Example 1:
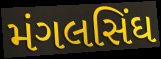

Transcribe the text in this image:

મંગલસિંઘ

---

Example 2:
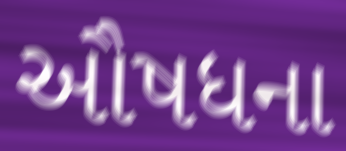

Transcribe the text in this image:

ઔષધના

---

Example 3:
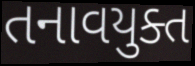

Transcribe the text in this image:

તનાવયુક્ત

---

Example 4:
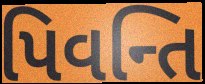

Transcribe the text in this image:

પિવન્તિ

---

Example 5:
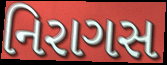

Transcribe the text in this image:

નિરાગસ